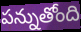
పన్నుతోంది